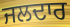
ਜਲਦਾਰ